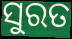
ସୁରତ